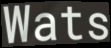
Wats